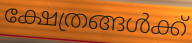
ക്ഷേത്രങ്ങൾക്ക്